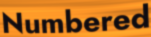
Numbered